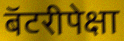
बॅटरीपेक्षा